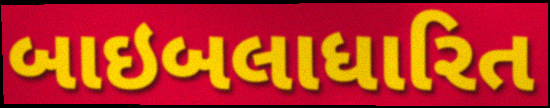
બાઇબલાધારિત